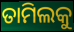
ତାମିଲକୁ